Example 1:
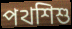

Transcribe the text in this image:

পথশিশু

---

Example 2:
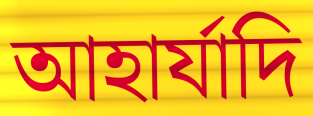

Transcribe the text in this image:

আহার্যাদি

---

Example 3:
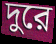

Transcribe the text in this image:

দুরে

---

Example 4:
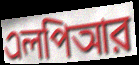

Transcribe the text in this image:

এলপিআর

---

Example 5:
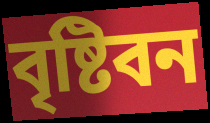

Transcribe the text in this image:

বৃষ্টিবন